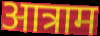
आत्राम